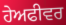
ਹੇਅਫੀਵਰ